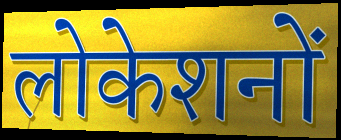
लोकेशनों